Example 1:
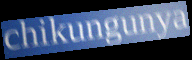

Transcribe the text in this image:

chikungunya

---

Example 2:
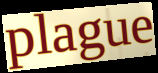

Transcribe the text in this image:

plague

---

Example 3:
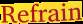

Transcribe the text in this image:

Refrain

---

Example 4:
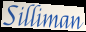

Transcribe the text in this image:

Silliman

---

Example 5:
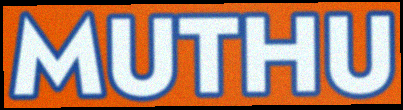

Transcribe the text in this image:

MUTHU